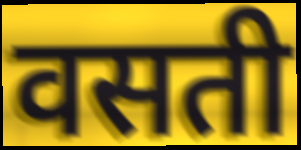
वसती